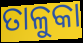
ତାଳୁକା